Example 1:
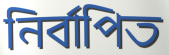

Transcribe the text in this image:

নির্বাপিত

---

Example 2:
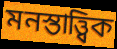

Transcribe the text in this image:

মনস্তাত্ত্বিক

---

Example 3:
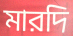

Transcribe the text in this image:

মারদি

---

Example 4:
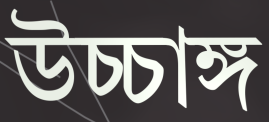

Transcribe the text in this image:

উচ্চাঙ্গ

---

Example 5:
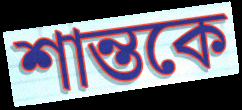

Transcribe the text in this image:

শান্তকে